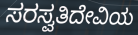
ಸರಸ್ವತಿದೇವಿಯ